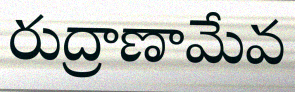
రుద్రాణామేవ